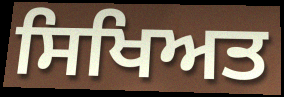
ਸਿਖਿਅਤ